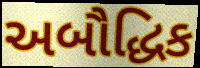
અબૌદ્ધિક